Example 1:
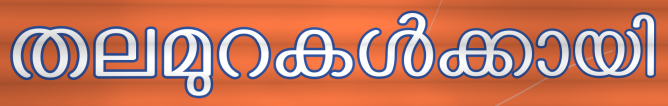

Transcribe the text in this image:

തലമുറകൾക്കായി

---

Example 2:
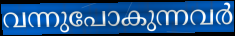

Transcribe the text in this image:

വന്നുപോകുന്നവർ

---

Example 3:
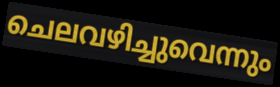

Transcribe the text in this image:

ചെലവഴിച്ചുവെന്നും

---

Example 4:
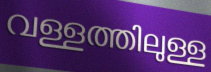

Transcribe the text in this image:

വള്ളത്തിലുള്ള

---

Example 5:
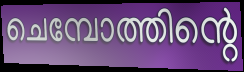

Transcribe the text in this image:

ചെമ്പോത്തിന്റെ